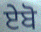
ਏਬੋ